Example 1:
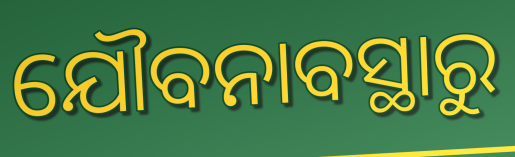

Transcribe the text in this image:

ଯୌବନାବସ୍ଥାରୁ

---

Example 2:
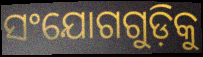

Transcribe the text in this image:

ସଂଯୋଗଗୁଡ଼ିକୁ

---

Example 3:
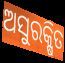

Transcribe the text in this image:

ଅସୁରକ୍ଷିତ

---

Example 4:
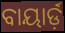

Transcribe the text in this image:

ବାୟାର୍ଡ଼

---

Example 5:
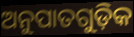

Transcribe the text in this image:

ଅନୁପାତଗୁଡ଼ିକ